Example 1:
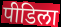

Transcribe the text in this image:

पीडिला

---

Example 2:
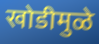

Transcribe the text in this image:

खोडीमुळे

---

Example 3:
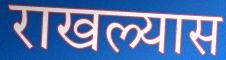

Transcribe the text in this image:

राखल्यास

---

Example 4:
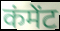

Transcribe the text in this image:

कंमेंट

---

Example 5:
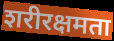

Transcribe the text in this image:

शरीरक्षमता